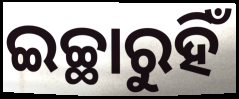
ଇଚ୍ଛାରୁହିଁ